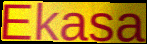
Ekasa